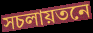
সচলায়তনে